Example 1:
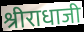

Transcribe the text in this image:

श्रीराधाजी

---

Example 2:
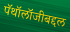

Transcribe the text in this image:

पॅथॉलॉजीबद्दल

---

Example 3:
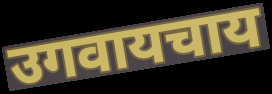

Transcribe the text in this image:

उगवायचाय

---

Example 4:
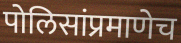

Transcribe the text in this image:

पोलिसांप्रमाणेच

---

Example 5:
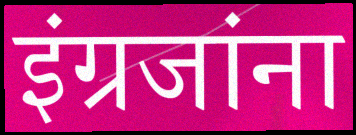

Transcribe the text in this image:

इंग्रजांना